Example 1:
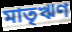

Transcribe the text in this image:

মাতৃঋণ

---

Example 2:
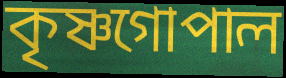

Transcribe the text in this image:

কৃষ্ণগোপাল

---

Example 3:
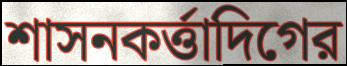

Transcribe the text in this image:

শাসনকর্ত্তাদিগের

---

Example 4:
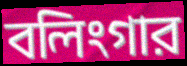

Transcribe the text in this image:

বলিংগার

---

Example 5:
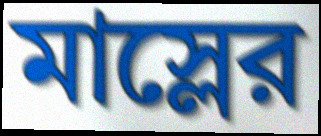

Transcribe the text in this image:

মাস্লের